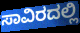
ಸಾವಿರದಲ್ಲಿ